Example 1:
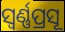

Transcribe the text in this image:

ସ୍ୱର୍ଣ୍ଣପ୍ରସୂ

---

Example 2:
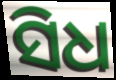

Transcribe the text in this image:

ସିଧ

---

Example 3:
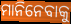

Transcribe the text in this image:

ମାନିନେବାକୁ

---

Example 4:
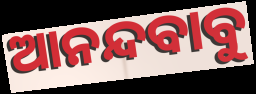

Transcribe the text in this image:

ଆନନ୍ଦବାବୁ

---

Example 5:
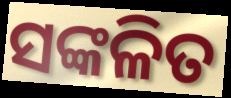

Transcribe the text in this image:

ସଙ୍କଳିତ